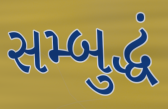
સમ્બુદ્ધં